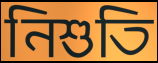
নিশুতি